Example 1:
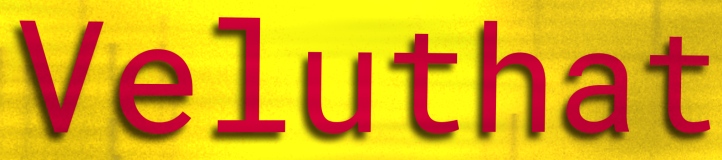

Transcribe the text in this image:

Veluthat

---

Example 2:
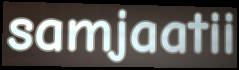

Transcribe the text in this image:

samjaatii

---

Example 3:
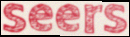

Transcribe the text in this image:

seers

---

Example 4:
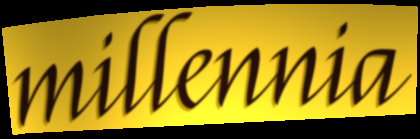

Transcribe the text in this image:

millennia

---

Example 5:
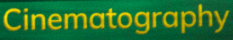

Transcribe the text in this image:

Cinematography